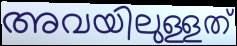
അവയിലുള്ളത്